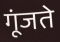
गूंजते